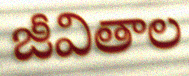
జీవితాల